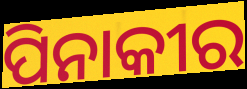
ପିନାକୀର